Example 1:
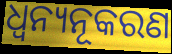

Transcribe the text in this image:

ଧ୍ୱନ୍ୟନୂକରଣ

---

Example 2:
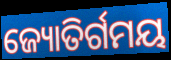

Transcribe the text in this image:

ଜ୍ୟୋତିର୍ଗମୟ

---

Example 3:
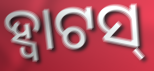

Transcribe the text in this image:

ହ୍ୱାଟସ୍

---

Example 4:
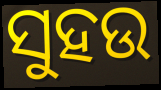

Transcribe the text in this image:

ସୁହଉ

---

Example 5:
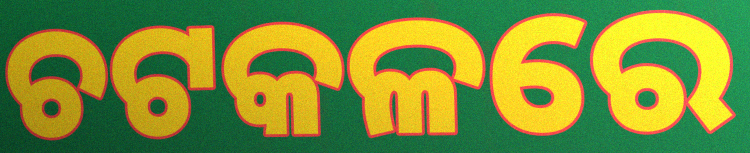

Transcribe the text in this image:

ଚଟକଳରେ